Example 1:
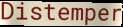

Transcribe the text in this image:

Distemper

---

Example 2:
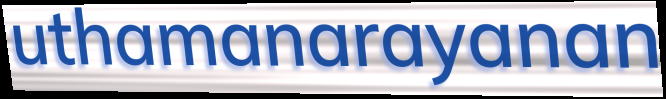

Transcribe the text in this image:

uthamanarayanan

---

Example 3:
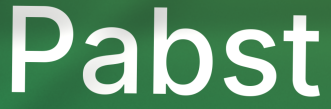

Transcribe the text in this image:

Pabst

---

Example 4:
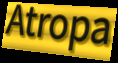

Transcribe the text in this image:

Atropa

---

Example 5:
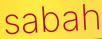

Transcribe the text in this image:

sabah